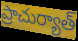
ప్రాచుర్యాత్